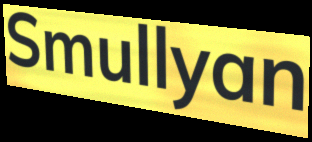
Smullyan